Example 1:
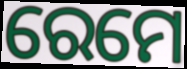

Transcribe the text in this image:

ରେମେ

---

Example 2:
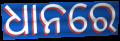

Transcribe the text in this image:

ଧାନରେ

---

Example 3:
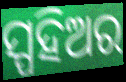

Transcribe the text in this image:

ସ୍ପହିଅର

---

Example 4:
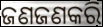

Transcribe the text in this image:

ଜଣଜଣକରି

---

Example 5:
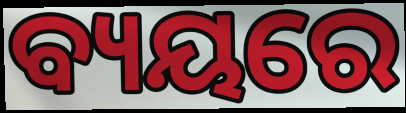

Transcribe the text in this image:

ବ୍ୟୟରେ